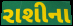
રાશીના